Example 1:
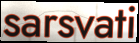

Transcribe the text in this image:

sarsvati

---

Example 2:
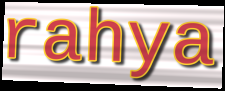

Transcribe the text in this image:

rahya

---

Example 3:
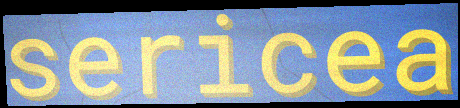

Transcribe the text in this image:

sericea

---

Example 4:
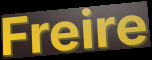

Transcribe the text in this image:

Freire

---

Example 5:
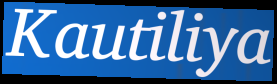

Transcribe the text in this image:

Kautiliya